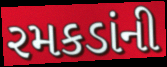
રમકડાંની